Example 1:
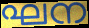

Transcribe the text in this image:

ഘന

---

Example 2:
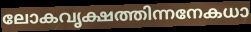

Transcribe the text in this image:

ലോകവൃക്ഷത്തിന്നനേകധാ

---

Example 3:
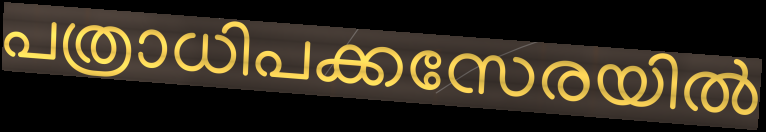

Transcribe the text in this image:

പത്രാധിപക്കസേരയിൽ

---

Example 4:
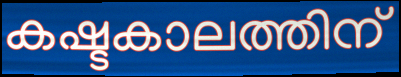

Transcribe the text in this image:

കഷ്ടകാലത്തിന്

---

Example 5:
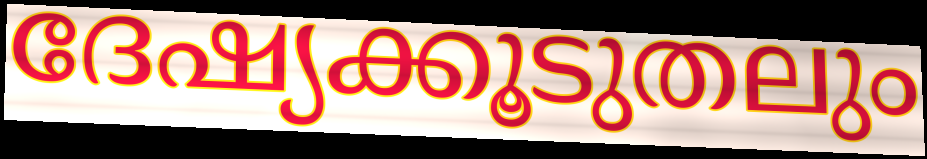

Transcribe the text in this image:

ദേഷ്യക്കൂടുതലും